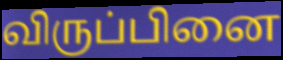
விருப்பினை